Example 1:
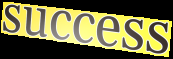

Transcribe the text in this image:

success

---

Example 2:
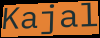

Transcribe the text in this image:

Kajal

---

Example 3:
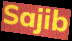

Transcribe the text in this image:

Sajib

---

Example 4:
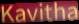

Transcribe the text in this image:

Kavitha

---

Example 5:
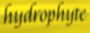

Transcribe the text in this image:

hydrophyte